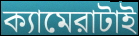
ক্যামেরাটাই